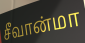
சீவான்மா